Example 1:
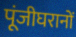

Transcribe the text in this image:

पूंजीघरानों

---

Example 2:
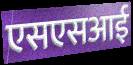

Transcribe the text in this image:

एसएसआई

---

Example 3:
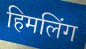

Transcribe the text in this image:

हिमलिंग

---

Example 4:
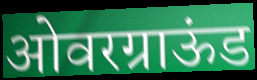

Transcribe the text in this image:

ओवरग्राऊंड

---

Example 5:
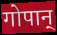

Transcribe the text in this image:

गोपान्